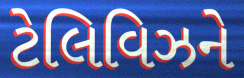
ટેલિવિઝને